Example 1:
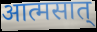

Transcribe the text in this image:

आत्मसात्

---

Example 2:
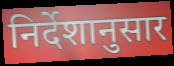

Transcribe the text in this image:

निर्देशानुसार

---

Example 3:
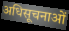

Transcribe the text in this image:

अधिसूचनाओं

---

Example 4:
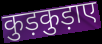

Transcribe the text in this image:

कुड़कुड़ाए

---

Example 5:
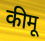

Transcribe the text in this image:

कीमू